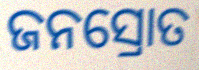
ଜନସ୍ରୋତ